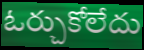
ఓర్చుకోలేదు